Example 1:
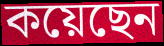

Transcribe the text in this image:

কয়েছেন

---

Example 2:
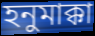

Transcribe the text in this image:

হনুমাক্কা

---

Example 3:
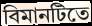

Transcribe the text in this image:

বিমানটিতে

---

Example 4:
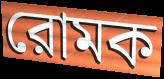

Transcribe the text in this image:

রোমক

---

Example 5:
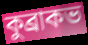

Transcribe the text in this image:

কুব্রাকভ